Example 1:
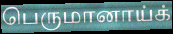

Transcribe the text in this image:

பெருமானாய்க்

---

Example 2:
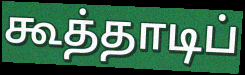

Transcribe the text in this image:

கூத்தாடிப்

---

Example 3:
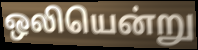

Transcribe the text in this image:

ஒலியென்று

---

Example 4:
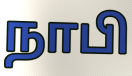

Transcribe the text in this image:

நாபி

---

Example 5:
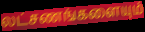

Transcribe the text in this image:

லட்சணங்களையும்